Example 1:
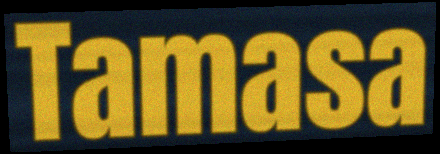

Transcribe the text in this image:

Tamasa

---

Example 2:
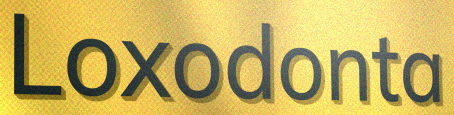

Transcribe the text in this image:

Loxodonta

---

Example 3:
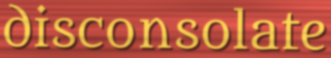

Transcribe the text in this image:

disconsolate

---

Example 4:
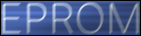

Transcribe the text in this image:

EPROM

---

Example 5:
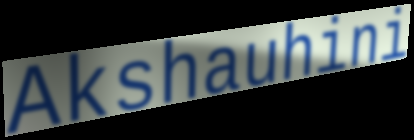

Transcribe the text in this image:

Akshauhini